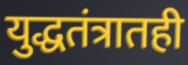
युद्धतंत्रातही